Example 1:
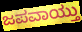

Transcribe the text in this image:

ಜಪವಾಯ್ತು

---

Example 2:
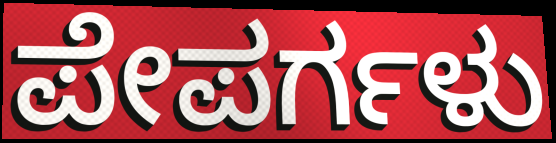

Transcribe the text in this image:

ಪೇಪರ್ಗಳು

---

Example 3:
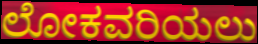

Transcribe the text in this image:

ಲೋಕವರಿಯಲು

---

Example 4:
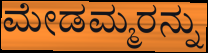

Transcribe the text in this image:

ಮೇಡಮ್ಮರನ್ನು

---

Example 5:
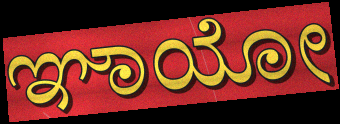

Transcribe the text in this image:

ಞಾಯೋ